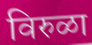
विरुळा